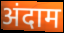
अंदाम